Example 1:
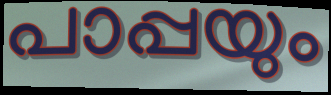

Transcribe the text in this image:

പാപ്പയും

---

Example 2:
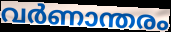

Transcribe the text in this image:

വർണാന്തരം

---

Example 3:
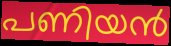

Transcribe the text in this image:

പണിയൻ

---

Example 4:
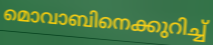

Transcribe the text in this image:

മൊവാബിനെക്കുറിച്ച്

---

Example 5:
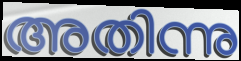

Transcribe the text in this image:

അതിന്നു